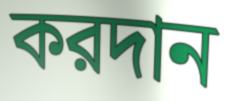
করদান